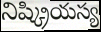
నిష్క్రియస్య